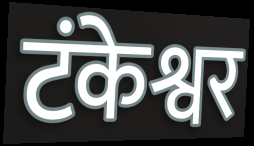
टंकेश्वर